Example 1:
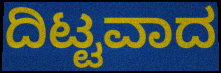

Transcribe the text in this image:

ದಿಟ್ಟವಾದ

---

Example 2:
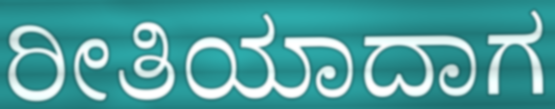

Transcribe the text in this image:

ರೀತಿಯಾದಾಗ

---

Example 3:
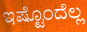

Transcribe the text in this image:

ಇಷ್ಟೊಂದೆಲ್ಲ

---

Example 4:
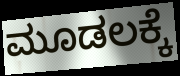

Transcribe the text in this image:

ಮೂಡಲಕ್ಕೆ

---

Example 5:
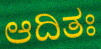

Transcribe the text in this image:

ಆದಿತಃ